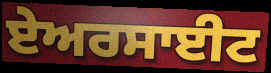
ਏਅਰਸਾਈਟ